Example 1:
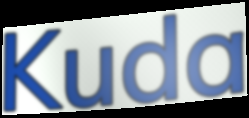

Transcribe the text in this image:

Kuda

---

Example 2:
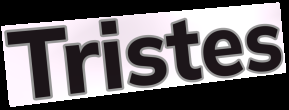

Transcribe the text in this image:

Tristes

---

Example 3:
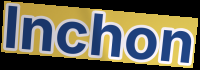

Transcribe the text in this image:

Inchon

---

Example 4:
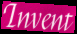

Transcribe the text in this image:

Invent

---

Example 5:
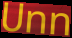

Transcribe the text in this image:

Unn